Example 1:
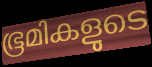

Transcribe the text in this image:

ഭൂമികളുടെ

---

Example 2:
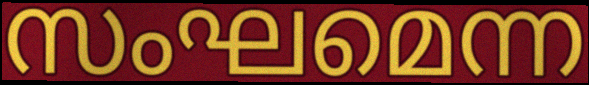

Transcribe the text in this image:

സംഘമെന്ന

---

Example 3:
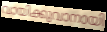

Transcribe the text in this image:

വായിക്കുവാനായി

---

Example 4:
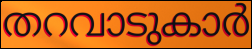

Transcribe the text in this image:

തറവാടുകാർ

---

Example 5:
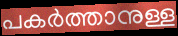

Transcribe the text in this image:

പകർത്താനുള്ള